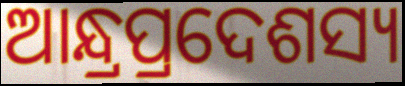
ଆନ୍ଧ୍ରପ୍ରଦେଶସ୍ୟ